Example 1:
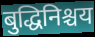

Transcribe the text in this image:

बुद्धिनिश्चय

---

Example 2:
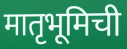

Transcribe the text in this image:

मातृभूमिची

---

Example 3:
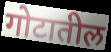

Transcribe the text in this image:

गोटातील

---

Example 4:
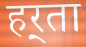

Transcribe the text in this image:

हर्ता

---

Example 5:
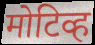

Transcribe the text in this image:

मोटिव्ह